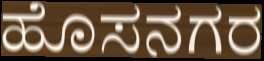
ಹೊಸನಗರ